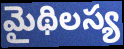
మైథిలస్య